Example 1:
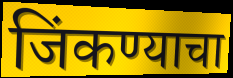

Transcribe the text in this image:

जिंकण्याचा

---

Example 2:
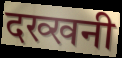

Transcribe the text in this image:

दख्खनी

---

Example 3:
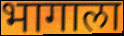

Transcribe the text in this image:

भागाला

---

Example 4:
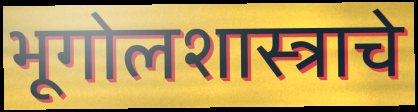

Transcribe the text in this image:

भूगोलशास्त्राचे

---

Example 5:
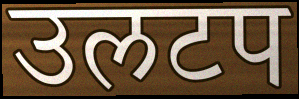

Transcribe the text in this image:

उलटप